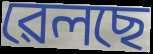
ৱেলছে